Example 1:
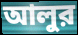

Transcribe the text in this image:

আলুর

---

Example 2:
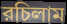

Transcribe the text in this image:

রচিলাম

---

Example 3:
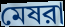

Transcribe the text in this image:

মেষরা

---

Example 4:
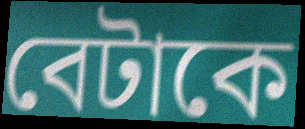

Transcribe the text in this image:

বেটাকে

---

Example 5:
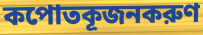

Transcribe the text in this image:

কপোতকূজনকরুণ